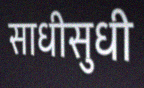
साधीसुधी